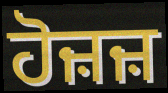
ਹੋਜ਼ਜ਼